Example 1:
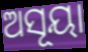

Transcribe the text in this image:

ଅସୂୟା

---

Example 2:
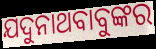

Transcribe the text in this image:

ଯଦୁନାଥବାବୁଙ୍କର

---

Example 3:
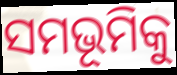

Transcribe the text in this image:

ସମଭୂମିକୁ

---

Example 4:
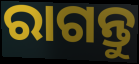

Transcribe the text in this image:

ରାଗନ୍ତୁ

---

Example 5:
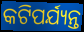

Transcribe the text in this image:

କଟିପର୍ଯ୍ୟନ୍ତ